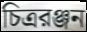
চিত্ররঞ্জন